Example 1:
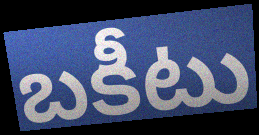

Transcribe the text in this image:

బకీటు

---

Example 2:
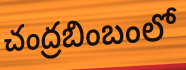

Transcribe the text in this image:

చంద్రబింబంలో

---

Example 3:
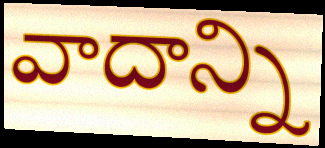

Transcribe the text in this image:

వాదాన్ని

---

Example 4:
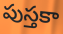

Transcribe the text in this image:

పుస్తకా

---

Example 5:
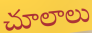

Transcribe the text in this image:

చూలాలు